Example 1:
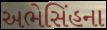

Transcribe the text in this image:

અભેસિંહના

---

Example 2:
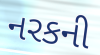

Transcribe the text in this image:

નરકની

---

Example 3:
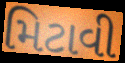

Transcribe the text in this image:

મિટાવી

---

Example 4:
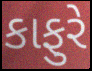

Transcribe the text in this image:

કાફુરે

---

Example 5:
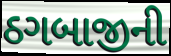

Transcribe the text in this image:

ઠગબાજીની